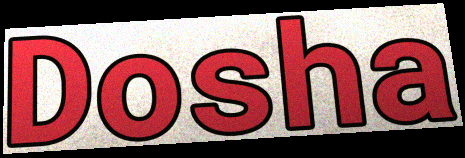
Dosha